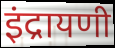
इंद्रायणी